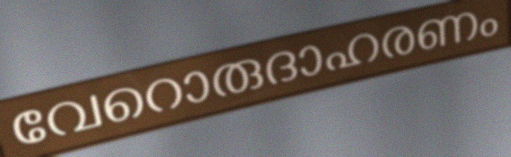
വേറൊരുദാഹരണം